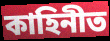
কাহিনীত